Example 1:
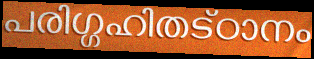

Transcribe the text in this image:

പരിഗ്ഗഹിതട്ഠാനം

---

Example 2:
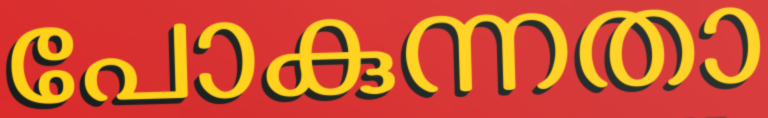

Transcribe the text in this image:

പോകുന്നതാ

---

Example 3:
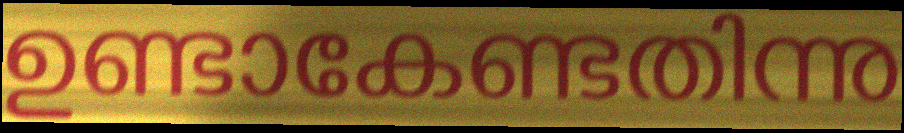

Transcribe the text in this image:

ഉണ്ടാകേണ്ടതിന്നു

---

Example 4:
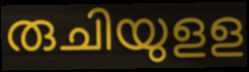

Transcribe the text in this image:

രുചിയുളള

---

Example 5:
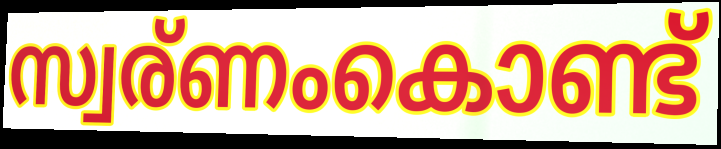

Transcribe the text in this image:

സ്വര്ണംകൊണ്ട്